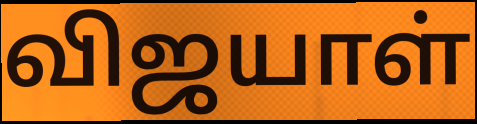
விஜயாள்